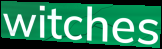
witches